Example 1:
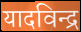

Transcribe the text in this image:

यादविन्द्र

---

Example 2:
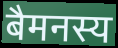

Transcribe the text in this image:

बैमनस्य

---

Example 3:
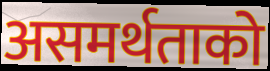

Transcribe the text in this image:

असमर्थताको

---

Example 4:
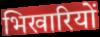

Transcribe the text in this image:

भिखारियों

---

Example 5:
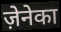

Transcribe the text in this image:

ज़ेनेका